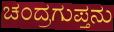
ಚಂದ್ರಗುಪ್ತನು